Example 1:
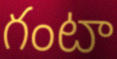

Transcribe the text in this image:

గంటా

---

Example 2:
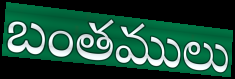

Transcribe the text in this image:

బంతములు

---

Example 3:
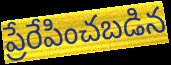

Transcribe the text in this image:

ప్రేరేపించబడిన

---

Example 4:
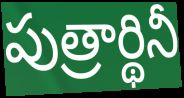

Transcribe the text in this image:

పుత్రార్థినీ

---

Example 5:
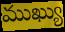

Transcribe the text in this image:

ముఖ్యు